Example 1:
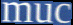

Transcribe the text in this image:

muc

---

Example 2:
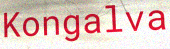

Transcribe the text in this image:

Kongalva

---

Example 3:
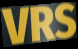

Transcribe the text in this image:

VRS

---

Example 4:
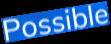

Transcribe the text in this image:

Possible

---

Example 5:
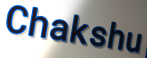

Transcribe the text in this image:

Chakshu